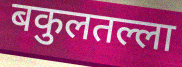
बकुलतल्ला